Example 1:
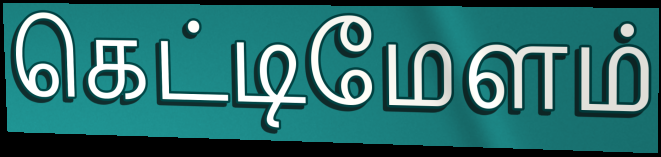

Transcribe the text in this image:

கெட்டிமேளம்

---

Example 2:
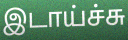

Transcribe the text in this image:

இடாய்ச்சு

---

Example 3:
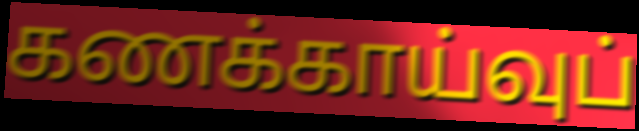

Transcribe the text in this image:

கணக்காய்வுப்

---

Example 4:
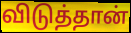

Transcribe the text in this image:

விடுத்தான்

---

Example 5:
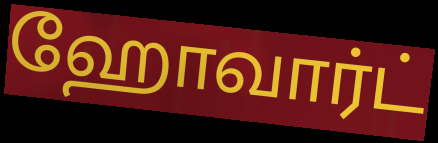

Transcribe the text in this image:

ஹோவார்ட்